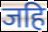
जहि